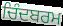
ਚਿੰਦਬਰਮ